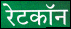
रेटकॉन